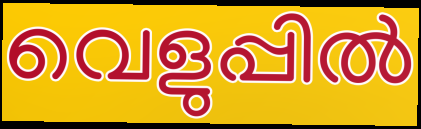
വെളുപ്പിൽ